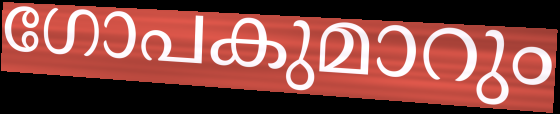
ഗോപകുമാറും